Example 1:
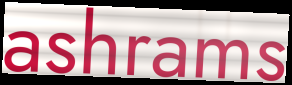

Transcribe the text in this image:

ashrams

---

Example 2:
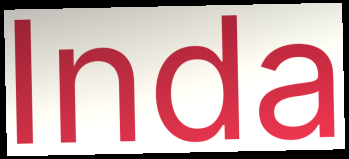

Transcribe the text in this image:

Inda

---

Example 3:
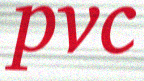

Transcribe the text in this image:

pvc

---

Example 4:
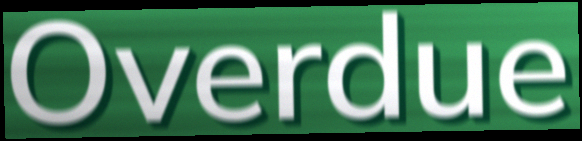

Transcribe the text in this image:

Overdue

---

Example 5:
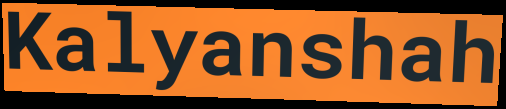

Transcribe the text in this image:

Kalyanshah